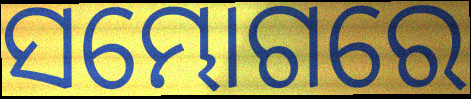
ସମ୍ଭୋଗରେ